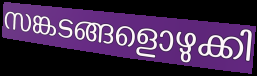
സങ്കടങ്ങളൊഴുക്കി